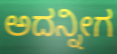
ಅದನ್ನೀಗ